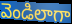
వెండిలాగా